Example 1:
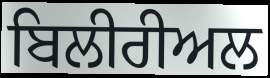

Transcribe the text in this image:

ਬਿਲੀਰੀਅਲ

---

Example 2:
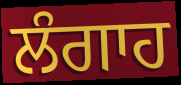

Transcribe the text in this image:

ਲੰਗਾਹ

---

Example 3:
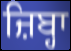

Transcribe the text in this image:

ਜ਼ਿਬ੍ਹਾ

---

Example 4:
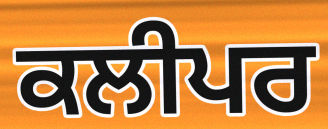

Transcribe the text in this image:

ਕਲੀਪਰ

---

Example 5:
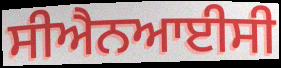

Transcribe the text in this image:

ਸੀਐਨਆਈਸੀ